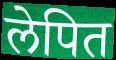
लेपित